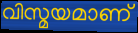
വിസ്മയമാണ്